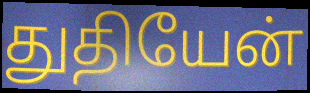
துதியேன்